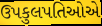
ઉપકુલપતિઓએ